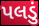
પલડું